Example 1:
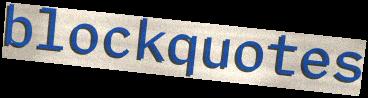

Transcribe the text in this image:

blockquotes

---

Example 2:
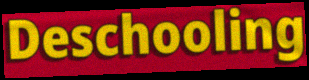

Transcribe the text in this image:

Deschooling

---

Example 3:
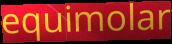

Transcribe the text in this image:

equimolar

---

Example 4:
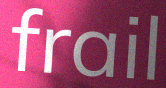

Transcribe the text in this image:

frail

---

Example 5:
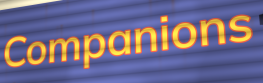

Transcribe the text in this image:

Companions